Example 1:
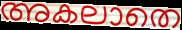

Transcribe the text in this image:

അകലാതെ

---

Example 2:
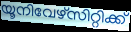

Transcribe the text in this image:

യൂനിവേഴ്സിറ്റിക്ക്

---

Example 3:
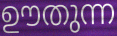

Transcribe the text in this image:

ഊതുന്ന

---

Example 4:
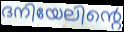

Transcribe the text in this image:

ദനിയേലിന്റെ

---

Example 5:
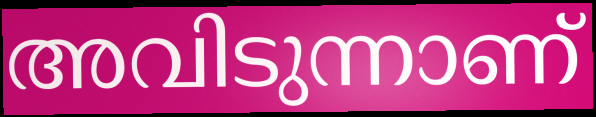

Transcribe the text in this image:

അവിടുന്നാണ്